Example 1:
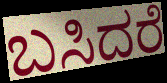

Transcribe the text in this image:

ಬಸಿದರೆ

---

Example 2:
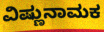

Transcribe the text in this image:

ವಿಷ್ಣುನಾಮಕ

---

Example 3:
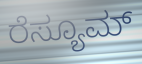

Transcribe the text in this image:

ರೆಸ್ಯೂಮ್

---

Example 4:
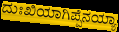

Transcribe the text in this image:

ದುಃಖಿಯಾಗಿಪ್ಪೆನಯ್ಯಾ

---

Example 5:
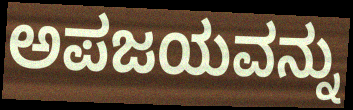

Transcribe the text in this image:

ಅಪಜಯವನ್ನು